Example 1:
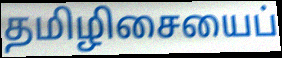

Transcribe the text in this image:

தமிழிசையைப்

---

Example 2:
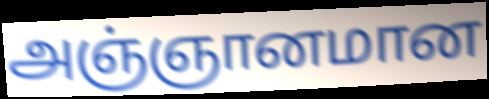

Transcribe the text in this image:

அஞ்ஞானமான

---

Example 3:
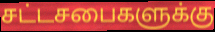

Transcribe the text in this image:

சட்டசபைகளுக்கு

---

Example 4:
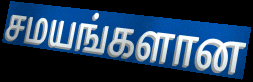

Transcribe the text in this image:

சமயங்களான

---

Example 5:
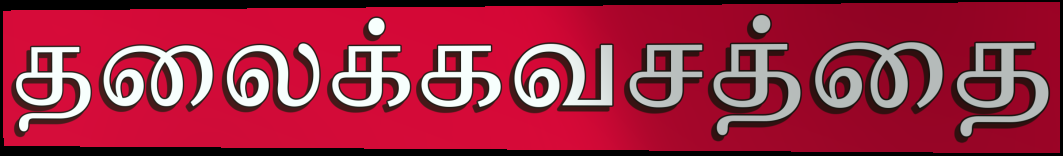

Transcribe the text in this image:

தலைக்கவசத்தை